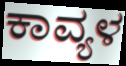
ಕಾವ್ಯಳ